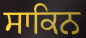
ਸਾਕਿਨ